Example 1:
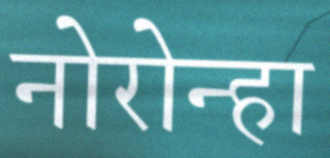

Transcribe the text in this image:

नोरोन्हा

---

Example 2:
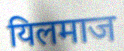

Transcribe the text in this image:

यिलमाज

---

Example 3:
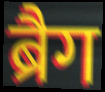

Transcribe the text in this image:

ब्रैग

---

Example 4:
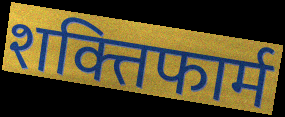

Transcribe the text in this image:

शक्तिफार्म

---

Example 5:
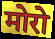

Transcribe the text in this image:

मोरो